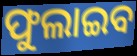
ଫୁଲାଇବ